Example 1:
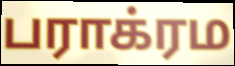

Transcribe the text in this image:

பராக்ரம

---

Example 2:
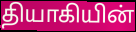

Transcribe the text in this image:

தியாகியின்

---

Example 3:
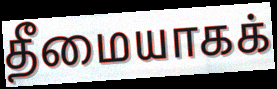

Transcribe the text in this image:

தீமையாகக்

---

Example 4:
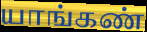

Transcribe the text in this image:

யாங்கண்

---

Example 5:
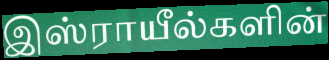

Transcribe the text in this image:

இஸ்ராயீல்களின்